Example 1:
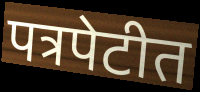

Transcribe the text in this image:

पत्रपेटीत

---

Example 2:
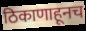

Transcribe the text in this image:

ठिकाणाहूनच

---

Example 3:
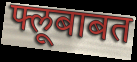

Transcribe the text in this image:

फ्लूबाबत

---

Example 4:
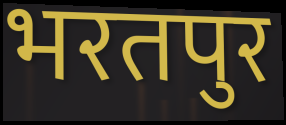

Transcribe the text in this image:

भरतपुर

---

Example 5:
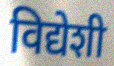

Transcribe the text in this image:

विद्येशी